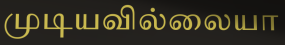
முடியவில்லையா